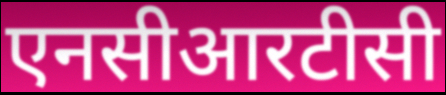
एनसीआरटीसी